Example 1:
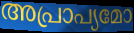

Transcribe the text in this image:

അപ്രാപ്യമോ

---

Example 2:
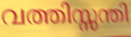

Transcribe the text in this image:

വത്തിസ്സന്തി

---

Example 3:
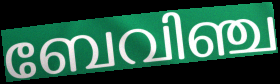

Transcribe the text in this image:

ബേവിഞ്ച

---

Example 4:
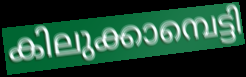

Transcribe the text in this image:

കിലുക്കാമ്പെട്ടി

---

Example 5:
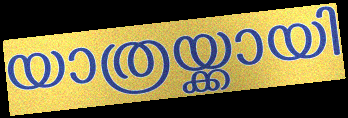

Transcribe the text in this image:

യാത്രയ്ക്കായി